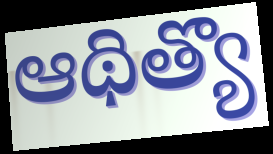
ఆథిత్యొ